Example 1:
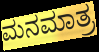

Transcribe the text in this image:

ಮನಮಾತ್ರ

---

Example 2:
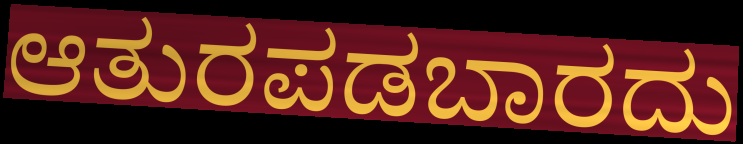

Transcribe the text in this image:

ಆತುರಪಡಬಾರದು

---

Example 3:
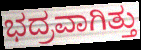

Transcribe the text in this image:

ಭದ್ರವಾಗಿತ್ತು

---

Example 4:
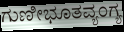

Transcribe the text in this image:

ಗುಣೀಭೂತವ್ಯಂಗ್ಯ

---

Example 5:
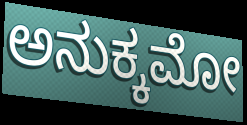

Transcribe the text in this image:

ಅನುಕ್ಕಮೋ